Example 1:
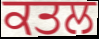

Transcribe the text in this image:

ਕਤਲ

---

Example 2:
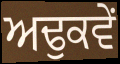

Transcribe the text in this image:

ਅਢੁਕਵੇਂ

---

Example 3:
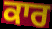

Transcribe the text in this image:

ਕਾਰ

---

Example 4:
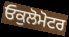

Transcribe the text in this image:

ਓਕੁਲੋਮੋਟਰ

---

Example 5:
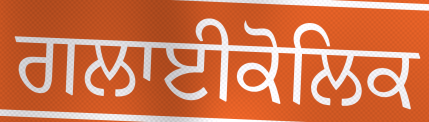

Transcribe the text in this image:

ਗਲਾਈਕੋਲਿਕ